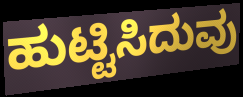
ಹುಟ್ಟಿಸಿದುವು